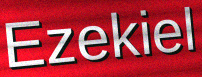
Ezekiel